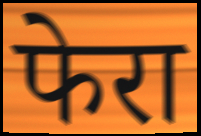
फेरा